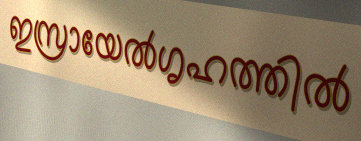
ഇസ്രായേൽഗൃഹത്തിൽ